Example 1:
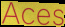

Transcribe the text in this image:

Aces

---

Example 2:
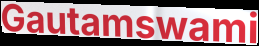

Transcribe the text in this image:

Gautamswami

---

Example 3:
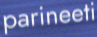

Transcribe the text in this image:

parineeti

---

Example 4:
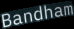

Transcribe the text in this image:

Bandham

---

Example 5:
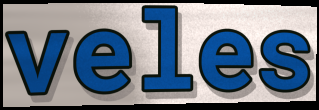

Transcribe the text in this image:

veles